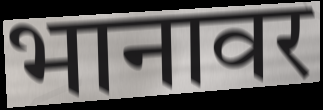
भानावर